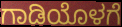
ಗಾಡಿಯೊಳಗೆ